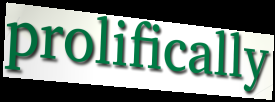
prolifically